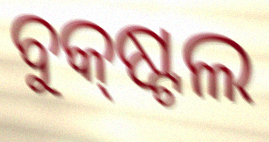
ବୁକ୍‌ଷ୍ଟଲ